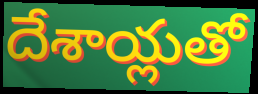
దేశాయ్లతో